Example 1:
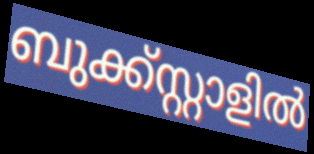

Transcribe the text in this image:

ബുക്ക്സ്റ്റാളിൽ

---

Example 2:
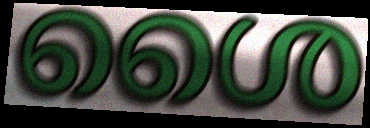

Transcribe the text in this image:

ശൈ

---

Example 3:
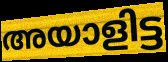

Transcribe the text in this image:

അയാളിട്ട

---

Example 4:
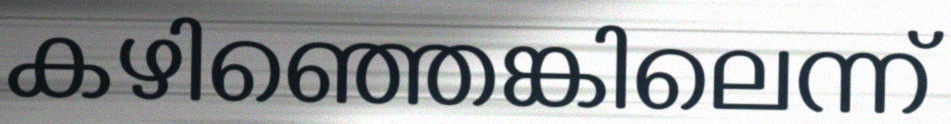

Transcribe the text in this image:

കഴിഞ്ഞെങ്കിലെന്ന്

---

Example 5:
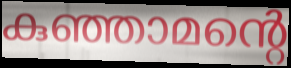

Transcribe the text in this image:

കുഞ്ഞാമന്റെ